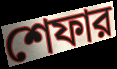
শেফার